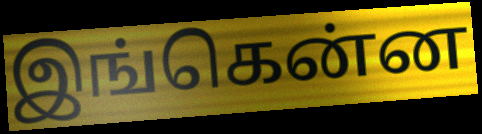
இங்கென்ன